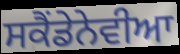
ਸਕੈਂਡੇਨੇਵੀਆ